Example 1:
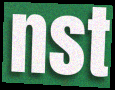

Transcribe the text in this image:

nst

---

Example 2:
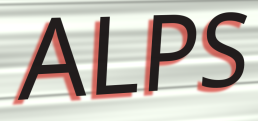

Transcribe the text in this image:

ALPS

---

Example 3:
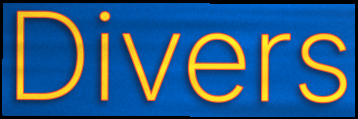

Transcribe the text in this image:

Divers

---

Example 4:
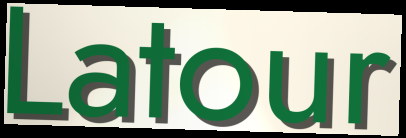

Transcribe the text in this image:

Latour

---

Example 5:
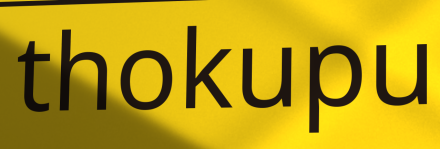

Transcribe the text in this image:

thokupu